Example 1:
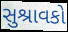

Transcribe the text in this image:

સુશ્રાવકો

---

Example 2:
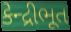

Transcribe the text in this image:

કેન્દ્રીભૂત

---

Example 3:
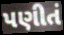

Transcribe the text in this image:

પણીતં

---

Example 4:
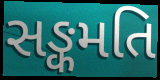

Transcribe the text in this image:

સઙ્કમતિ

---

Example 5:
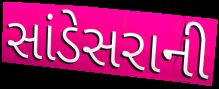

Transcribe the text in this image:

સાંડેસરાની